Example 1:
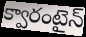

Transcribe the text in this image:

క్వారంటైన్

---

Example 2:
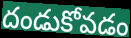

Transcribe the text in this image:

దండుకోవడం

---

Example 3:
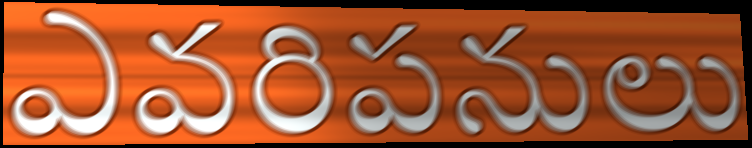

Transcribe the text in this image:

ఎవరిపనులు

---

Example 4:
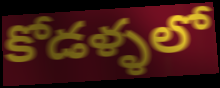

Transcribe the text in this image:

కోడళ్ళలో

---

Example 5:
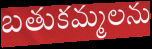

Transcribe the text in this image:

బతుకమ్మలను